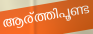
ആര്ത്തിപൂണ്ട